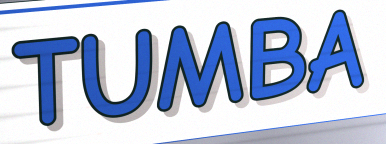
TUMBA